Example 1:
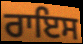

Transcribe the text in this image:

ਰਾਇਸ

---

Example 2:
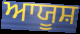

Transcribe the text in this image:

ਆਯੂਸ਼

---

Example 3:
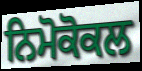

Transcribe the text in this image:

ਨਿਮੋਕੋਕਲ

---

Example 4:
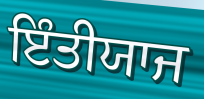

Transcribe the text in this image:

ਇੰਤੀਯਾਜ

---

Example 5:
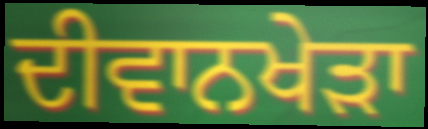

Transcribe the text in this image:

ਦੀਵਾਨਖੇੜਾ